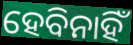
ହେବିନାହିଁ